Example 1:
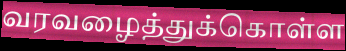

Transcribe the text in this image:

வரவழைத்துக்கொள்ள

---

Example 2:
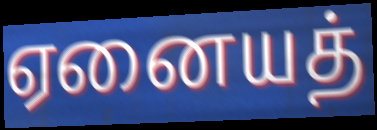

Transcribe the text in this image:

ஏனையத்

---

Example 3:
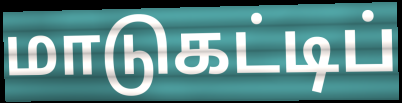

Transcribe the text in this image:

மாடுகட்டிப்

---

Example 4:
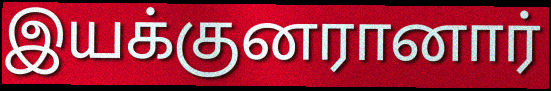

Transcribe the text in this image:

இயக்குனரானார்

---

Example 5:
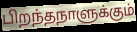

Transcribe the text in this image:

பிறந்தநாளுக்கும்